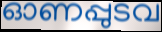
ഓണപ്പുടവ